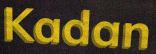
Kadan